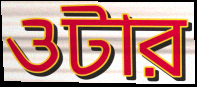
ওটার